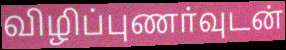
விழிப்புணர்வுடன்